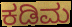
ಕಡಿಮ